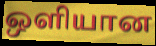
ஒளியான